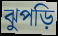
ঝুপড়ি